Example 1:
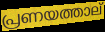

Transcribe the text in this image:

പ്രണയത്താല്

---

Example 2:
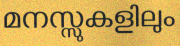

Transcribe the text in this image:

മനസ്സുകളിലും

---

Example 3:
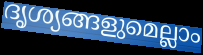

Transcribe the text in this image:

ദൃശ്യങ്ങളുമെല്ലാം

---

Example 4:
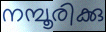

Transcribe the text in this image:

നമ്പൂരിക്കു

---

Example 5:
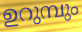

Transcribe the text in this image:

ഉറുമ്പും